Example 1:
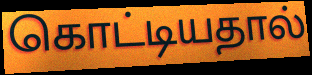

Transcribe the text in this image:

கொட்டியதால்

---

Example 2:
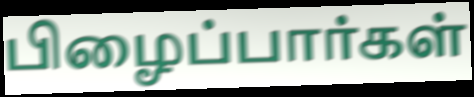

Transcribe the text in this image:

பிழைப்பார்கள்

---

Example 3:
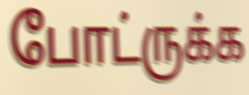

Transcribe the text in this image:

போட்ருக்க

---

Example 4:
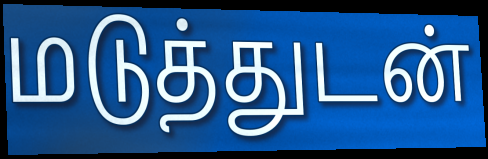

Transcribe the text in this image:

மடுத்துடன்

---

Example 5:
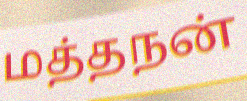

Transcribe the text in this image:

மத்தநன்